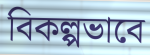
বিকল্পভাবে